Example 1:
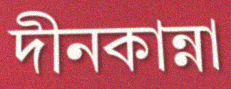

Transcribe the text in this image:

দীনকান্না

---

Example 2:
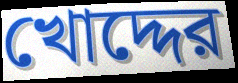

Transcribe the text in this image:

খোদ্দের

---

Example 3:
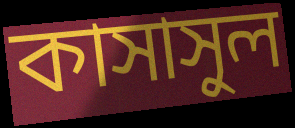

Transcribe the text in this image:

কাসাসুল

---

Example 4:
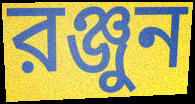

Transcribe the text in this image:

রঞ্জুন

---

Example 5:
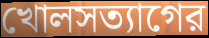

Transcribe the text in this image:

খোলসত্যাগের